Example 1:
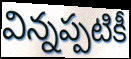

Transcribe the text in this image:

విన్నప్పటికీ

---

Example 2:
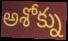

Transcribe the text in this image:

అశోక్ను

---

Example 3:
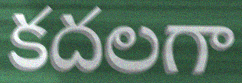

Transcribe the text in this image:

కదలగా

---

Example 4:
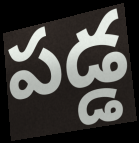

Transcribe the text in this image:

పడ్డ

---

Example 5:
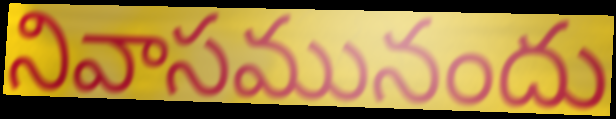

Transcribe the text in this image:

నివాసమునందు